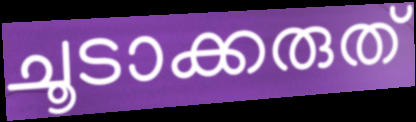
ചൂടാക്കരുത്